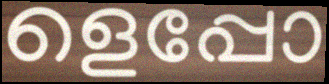
ളെപ്പോ